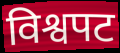
विश्वपट